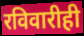
रविवारीही